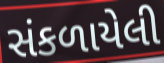
સંકળાયેલી